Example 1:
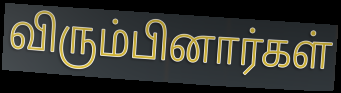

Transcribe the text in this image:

விரும்பினார்கள்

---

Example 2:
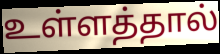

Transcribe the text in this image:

உள்ளத்தால்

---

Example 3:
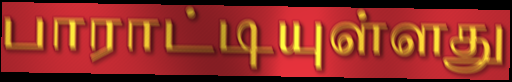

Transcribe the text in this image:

பாராட்டியுள்ளது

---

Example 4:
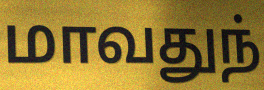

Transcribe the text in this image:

மாவதுந்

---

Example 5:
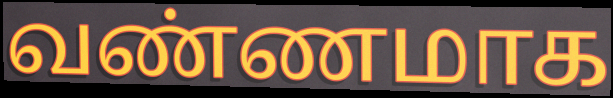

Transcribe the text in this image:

வண்ணமாக